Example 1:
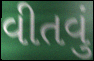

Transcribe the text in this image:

વીતવું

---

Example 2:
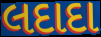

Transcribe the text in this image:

લદાદા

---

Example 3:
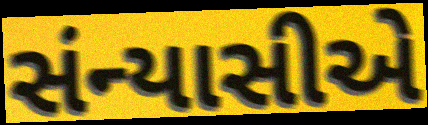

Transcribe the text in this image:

સંન્યાસીએ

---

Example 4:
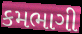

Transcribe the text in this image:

કમભાગી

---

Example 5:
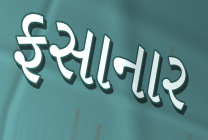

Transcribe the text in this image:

ફસાનાર